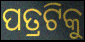
ପତ୍ରଟିକୁ